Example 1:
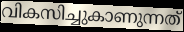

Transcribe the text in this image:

വികസിച്ചുകാണുന്നത്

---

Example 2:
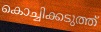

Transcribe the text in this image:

കൊച്ചിക്കടുത്ത്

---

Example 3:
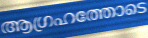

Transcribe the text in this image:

ആഗ്രഹത്തോടെ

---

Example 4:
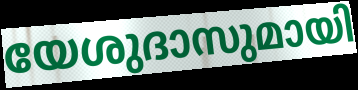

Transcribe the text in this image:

യേശുദാസുമായി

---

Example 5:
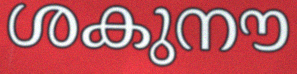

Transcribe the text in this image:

ശകുനൗ